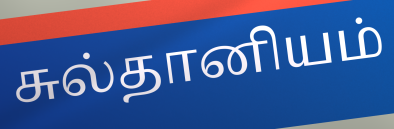
சுல்தானியம்